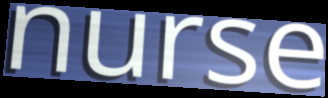
nurse